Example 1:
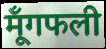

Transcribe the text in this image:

मूँगफली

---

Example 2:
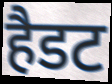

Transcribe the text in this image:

हैडट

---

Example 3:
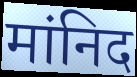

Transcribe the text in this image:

मांनिद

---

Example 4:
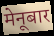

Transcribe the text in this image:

मेनूबार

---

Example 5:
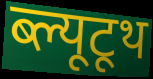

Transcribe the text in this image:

ब्ल्यूटूथ